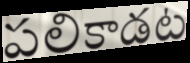
పలికాడట